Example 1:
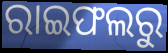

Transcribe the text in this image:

ରାଇଫଲରୁ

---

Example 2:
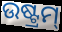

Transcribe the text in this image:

ଉଷ୍ଟ୍ରମ୍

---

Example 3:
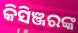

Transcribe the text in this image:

କିସିଞ୍ଜରଙ୍କ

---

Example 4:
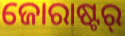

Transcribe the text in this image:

ଜୋରାଷ୍ଟର୍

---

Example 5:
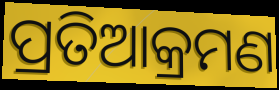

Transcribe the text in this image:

ପ୍ରତିଆକ୍ରମଣ